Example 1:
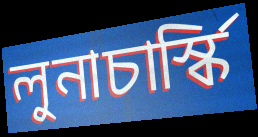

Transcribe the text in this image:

লুনাচার্স্কি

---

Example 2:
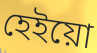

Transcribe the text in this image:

হেইয়ো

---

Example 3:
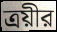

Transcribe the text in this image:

ত্রয়ীর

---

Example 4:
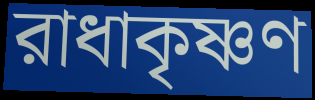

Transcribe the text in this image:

রাধাকৃষ্ণণ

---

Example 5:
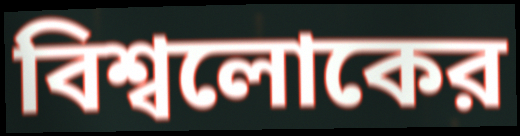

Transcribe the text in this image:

বিশ্বলোকের